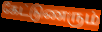
கேட்டுணரும்